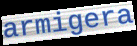
armigera